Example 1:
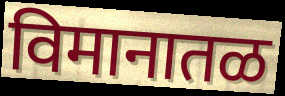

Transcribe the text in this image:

विमानातळ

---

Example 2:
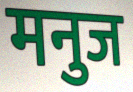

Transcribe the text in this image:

मनुज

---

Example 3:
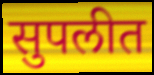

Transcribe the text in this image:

सुपलीत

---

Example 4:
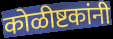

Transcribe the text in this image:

कोळीष्टकांनी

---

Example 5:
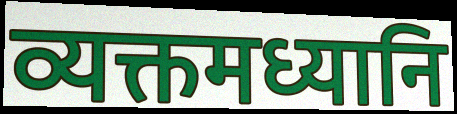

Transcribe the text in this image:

व्यक्तमध्यानि